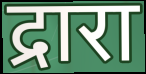
द्रारा